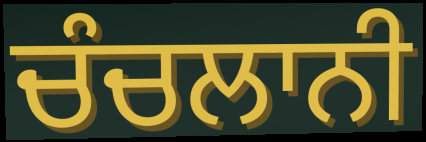
ਚੰਚਲਾਨੀ